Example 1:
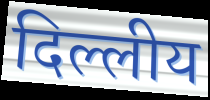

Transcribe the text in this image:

दिल्लीय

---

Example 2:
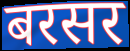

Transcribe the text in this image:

बरसर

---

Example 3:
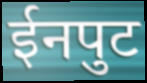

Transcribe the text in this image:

ईनपुट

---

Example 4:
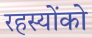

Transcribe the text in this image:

रहस्योंको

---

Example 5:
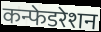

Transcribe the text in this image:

कन्‍फेडरेशन